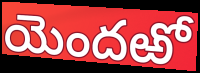
యెందఱో